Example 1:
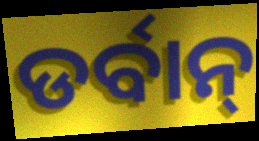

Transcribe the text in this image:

ଡର୍ବାନ୍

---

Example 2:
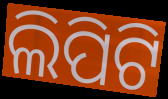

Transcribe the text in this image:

ଲିପିଟି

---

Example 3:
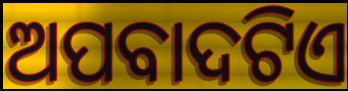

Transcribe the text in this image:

ଅପବାଦଟିଏ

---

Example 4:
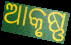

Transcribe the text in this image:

ଆକୃଷ୍ଣ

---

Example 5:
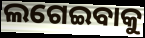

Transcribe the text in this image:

ଲଗେଇବାକୁ